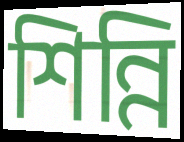
শিন্নি